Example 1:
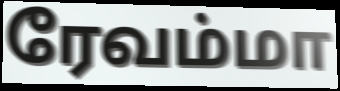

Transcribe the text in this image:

ரேவம்மா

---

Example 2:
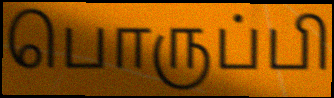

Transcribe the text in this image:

பொருப்பி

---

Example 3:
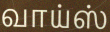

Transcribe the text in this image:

வாய்ஸ்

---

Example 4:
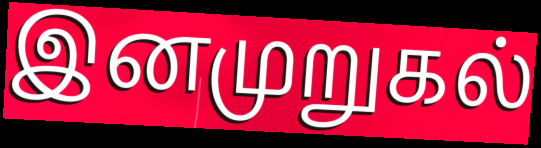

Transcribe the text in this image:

இனமுறுகல்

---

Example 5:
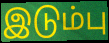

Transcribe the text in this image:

இடும்பு